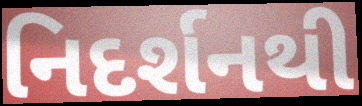
નિદર્શનથી